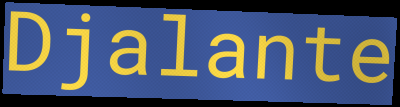
Djalante